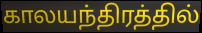
காலயந்திரத்தில்